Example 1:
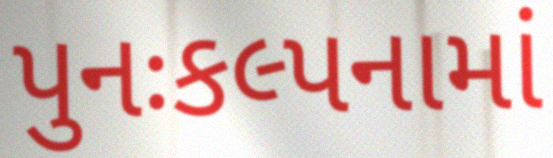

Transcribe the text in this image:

પુનઃકલ્પનામાં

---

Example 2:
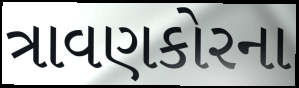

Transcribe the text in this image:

ત્રાવણકોરના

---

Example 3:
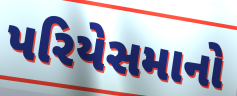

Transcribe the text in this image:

પરિયેસમાનો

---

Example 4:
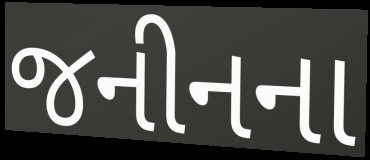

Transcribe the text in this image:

જનીનના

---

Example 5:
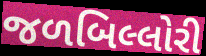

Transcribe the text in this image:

જળબિલ્લોરી